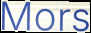
Mors